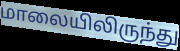
மாலையிலிருந்து